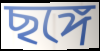
ছঙ্গে